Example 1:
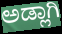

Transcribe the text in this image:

ಅಡ್ಲಾಗಿ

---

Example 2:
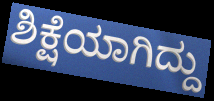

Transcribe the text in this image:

ಶಿಕ್ಷೆಯಾಗಿದ್ದು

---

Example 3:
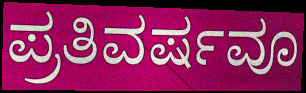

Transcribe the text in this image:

ಪ್ರತಿವರ್ಷವೂ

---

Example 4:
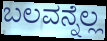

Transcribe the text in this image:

ಬಲವನ್ನೆಲ್ಲ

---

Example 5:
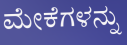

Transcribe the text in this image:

ಮೇಕೆಗಳನ್ನು